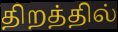
திறத்தில்